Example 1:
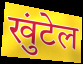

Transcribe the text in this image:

खुंटेल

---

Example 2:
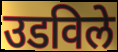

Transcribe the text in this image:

उडविले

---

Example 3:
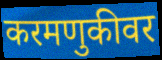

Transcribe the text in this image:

करमणुकीवर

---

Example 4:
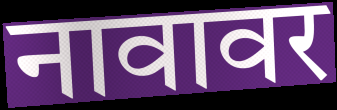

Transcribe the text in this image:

नावावर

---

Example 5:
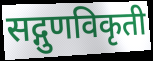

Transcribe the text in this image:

सद्गुणविकृती